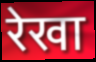
रेखा